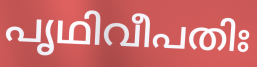
പൃഥിവീപതിഃ